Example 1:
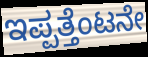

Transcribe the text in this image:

ಇಪ್ಪತ್ತೆಂಟನೇ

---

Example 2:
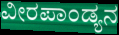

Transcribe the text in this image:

ವೀರಪಾಂಡ್ಯನ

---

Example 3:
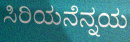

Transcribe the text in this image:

ಸಿರಿಯನೆನ್ನಯ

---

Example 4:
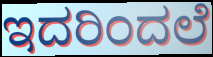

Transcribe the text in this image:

ಇದರಿಂದಲೆ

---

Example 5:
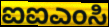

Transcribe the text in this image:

ಐಐಎಂಸಿ